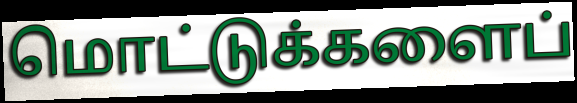
மொட்டுக்களைப்